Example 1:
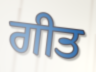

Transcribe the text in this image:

ਗੀਤ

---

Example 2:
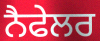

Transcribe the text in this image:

ਨੈਫੇਲਰ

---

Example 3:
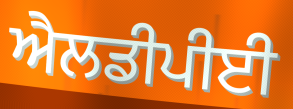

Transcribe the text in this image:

ਐਲਡੀਪੀਈ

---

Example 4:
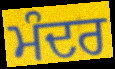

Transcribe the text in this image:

ਮੰਦਰ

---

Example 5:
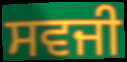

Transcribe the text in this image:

ਸਵਜੀ